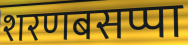
शरणबसप्पा